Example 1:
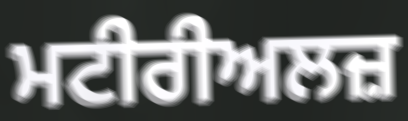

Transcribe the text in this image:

ਮਟੀਰੀਅਲਜ਼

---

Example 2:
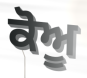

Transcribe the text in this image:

ਕੋਅੂ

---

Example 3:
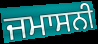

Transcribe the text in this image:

ਜਮਾਸਨੀ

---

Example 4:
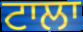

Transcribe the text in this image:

ਟਾਲਾ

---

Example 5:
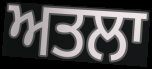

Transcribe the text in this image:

ਅਤਲਾ